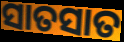
ସାତସାତ